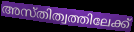
അസ്തിത്വത്തിലേക്ക്